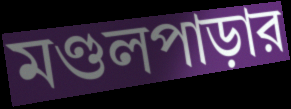
মণ্ডলপাড়ার